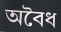
অবৈধ